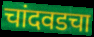
चांदवडचा